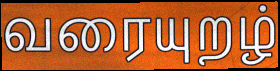
வரையுறழ்